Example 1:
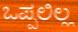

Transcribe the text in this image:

ಒಪ್ಪಲಿಲ್ಲ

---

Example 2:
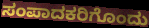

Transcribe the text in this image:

ಸಂಪಾದಕರಿಗೊಂದು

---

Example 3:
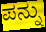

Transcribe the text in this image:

ಪನ್ನು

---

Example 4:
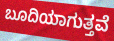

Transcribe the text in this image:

ಬೂದಿಯಾಗುತ್ತವೆ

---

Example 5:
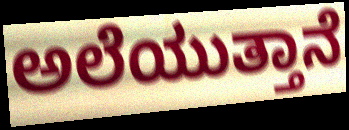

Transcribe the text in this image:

ಅಲೆಯುತ್ತಾನೆ